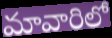
మావారిలో